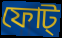
ফোট্